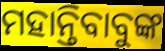
ମହାନ୍ତିବାବୁଙ୍କ